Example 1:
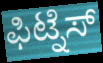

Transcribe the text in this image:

ಫಿಟ್ನೆಸ್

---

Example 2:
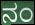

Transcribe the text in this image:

ನಂ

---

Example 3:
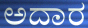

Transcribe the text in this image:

ಅದಾರ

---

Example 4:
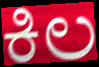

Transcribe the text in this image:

ಕಿಲ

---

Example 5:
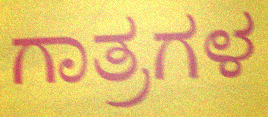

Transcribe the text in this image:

ಗಾತ್ರಗಳ